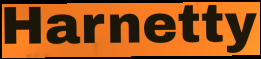
Harnetty